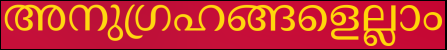
അനുഗ്രഹങ്ങളെല്ലാം